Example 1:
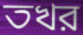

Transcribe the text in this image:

তখর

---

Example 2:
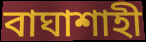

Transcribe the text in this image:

বাঘাশাহী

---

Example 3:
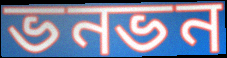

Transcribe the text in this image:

ভনভন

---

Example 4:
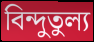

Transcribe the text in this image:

বিন্দুতুল্য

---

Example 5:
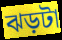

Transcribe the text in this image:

ঝড়টা